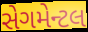
સેગમેન્ટલ